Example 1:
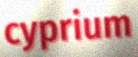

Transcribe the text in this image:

cyprium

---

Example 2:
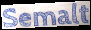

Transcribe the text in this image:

Semalt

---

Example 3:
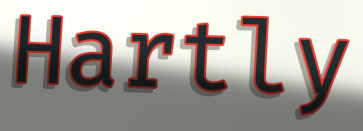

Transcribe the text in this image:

Hartly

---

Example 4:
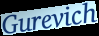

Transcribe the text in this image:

Gurevich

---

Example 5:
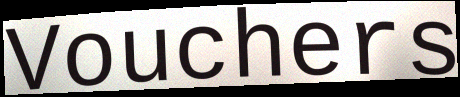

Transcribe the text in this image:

Vouchers